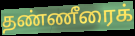
தண்ணீரைக்